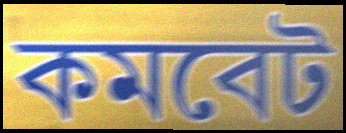
কমবেট